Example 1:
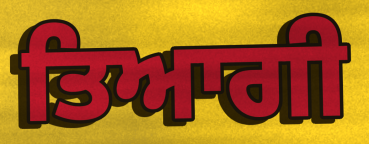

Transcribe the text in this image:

ਤਿਆਗੀ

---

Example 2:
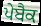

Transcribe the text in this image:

ਪੇਬੈਕ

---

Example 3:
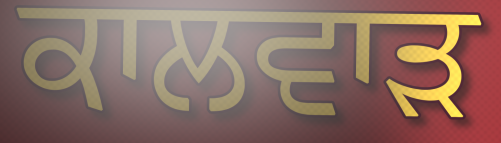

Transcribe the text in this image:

ਕਾਲਵਾੜ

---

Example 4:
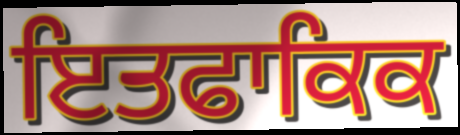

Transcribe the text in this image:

ਇਤਫਾਕਿਕ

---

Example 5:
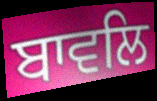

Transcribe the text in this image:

ਬਾਵਲਿ